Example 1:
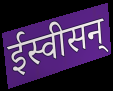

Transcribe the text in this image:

ईस्वीसन्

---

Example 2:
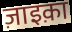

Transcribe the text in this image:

ज़ाइक़ा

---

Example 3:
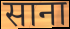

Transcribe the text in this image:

साना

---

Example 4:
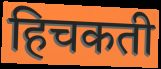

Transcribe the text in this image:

हिचकती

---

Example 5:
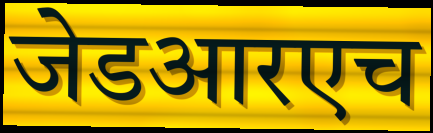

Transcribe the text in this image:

जेडआरएच